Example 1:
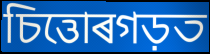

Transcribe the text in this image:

চিত্তোৰগড়ত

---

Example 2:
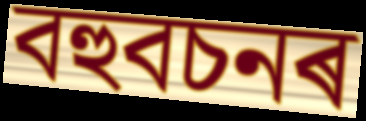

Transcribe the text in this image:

বহুবচনৰ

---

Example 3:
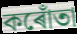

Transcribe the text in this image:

কৰোঁতা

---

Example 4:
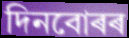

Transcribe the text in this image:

দিনবোৰৰ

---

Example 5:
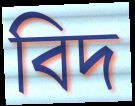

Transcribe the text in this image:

বিদ